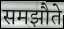
समझौते